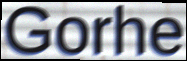
Gorhe